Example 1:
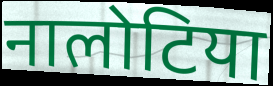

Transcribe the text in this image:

नालोटिया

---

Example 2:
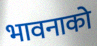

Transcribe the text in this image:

भावनाको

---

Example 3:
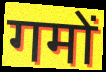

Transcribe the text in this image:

गमों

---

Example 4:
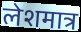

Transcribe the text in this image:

लेशमात्र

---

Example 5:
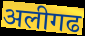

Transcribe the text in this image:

अलीगढ